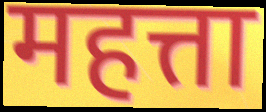
महत्ता